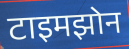
टाइमझोन